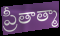
ప్రీతాత్మా